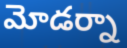
మోడర్నా